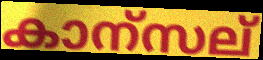
കാന്സല്